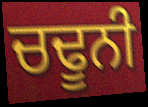
ਚਢੂਨੀ